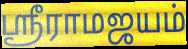
ஸ்ரீராமஜயம்